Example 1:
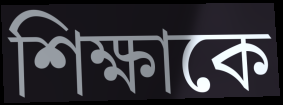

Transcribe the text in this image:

শিক্ষাকে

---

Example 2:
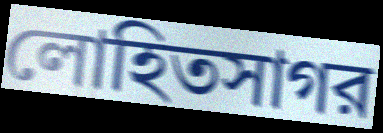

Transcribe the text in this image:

লোহিতসাগর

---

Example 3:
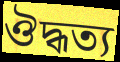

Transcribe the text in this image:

ঔদ্ধত্য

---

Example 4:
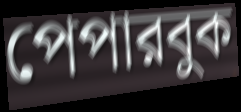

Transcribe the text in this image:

পেপারবুক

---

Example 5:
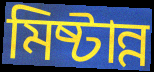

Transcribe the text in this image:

মিষ্টান্ন